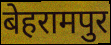
बेहरामपुर